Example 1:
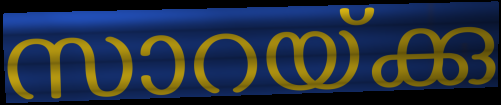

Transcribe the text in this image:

സാറയ്‌ക്കു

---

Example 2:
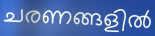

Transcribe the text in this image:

ചരണങ്ങളിൽ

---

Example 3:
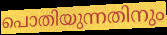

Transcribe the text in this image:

പൊതിയുന്നതിനും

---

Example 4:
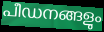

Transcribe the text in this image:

പീഡനങ്ങളും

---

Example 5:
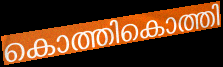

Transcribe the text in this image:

കൊത്തികൊത്തി